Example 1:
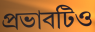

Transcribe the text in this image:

প্রভাবটিও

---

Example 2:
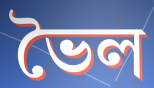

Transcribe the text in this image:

ভৈল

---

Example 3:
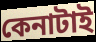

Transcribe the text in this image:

কেনাটাই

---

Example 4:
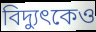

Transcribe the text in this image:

বিদ্যুৎকেও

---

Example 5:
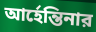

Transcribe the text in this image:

আর্হেন্তিনার